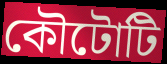
কৌটোটি